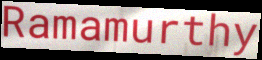
Ramamurthy